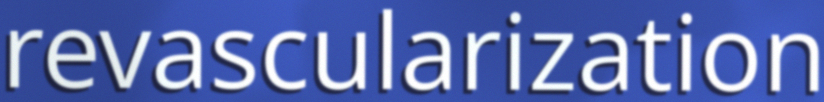
revascularization